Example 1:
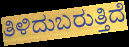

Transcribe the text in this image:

ತಿಳಿದುಬರುತ್ತಿದೆ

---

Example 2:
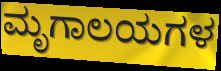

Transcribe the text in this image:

ಮೃಗಾಲಯಗಳ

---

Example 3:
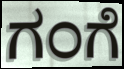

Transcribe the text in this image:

ಗಂಗೆ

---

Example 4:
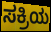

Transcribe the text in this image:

ಸಕ್ರಿಯ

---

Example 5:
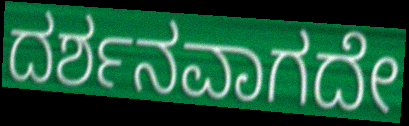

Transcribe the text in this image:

ದರ್ಶನವಾಗದೇ